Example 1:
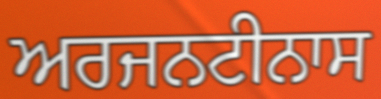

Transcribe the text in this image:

ਅਰਜਨਟੀਨਾਸ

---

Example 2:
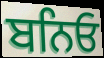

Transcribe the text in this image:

ਬਨਿਓ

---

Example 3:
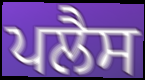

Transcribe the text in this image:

ਪਲੈਸ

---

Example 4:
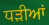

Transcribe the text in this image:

ਧੜੀਆਂ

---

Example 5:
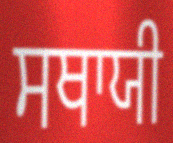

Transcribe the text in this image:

ਸਥਾਯੀ